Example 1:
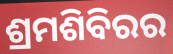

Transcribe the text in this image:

ଶ୍ରମଶିବିରର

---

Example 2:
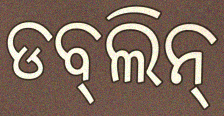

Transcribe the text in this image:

ଡବ୍‌ଲିନ୍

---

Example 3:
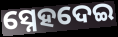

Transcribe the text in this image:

ସ୍ନେହଦେଇ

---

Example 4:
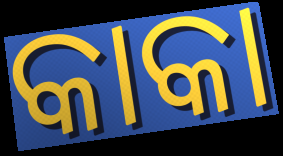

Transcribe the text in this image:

କାକା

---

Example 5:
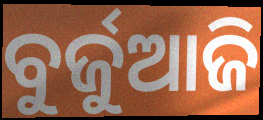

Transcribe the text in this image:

ବୁର୍ଜୁଆଜି